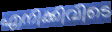
എനിക്കിവിടെ